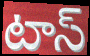
టాస్